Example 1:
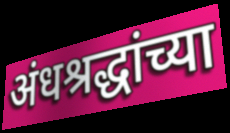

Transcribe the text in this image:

अंधश्रद्धांच्या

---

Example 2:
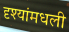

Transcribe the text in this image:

दृश्यांमधली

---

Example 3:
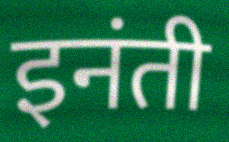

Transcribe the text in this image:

इनंती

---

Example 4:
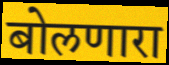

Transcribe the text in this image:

बोलणारा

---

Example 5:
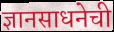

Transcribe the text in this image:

ज्ञानसाधनेची